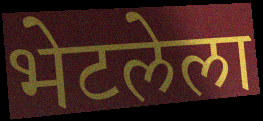
भेटलेला